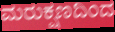
ಮರುಕ್ಷಣದಿಂದ